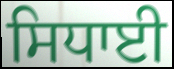
ਸਿਧਾਈ